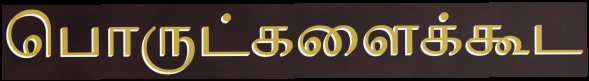
பொருட்களைக்கூட